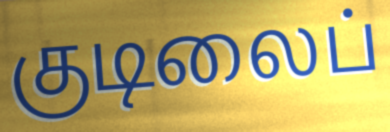
குடிலைப்